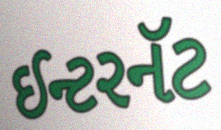
ઈન્ટરનૅટ